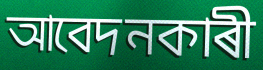
আবেদনকাৰী